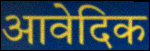
आवेदिक